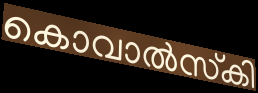
കൊവാൽസ്‌കി